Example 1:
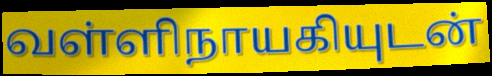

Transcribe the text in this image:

வள்ளிநாயகியுடன்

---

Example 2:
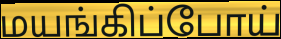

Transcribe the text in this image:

மயங்கிப்போய்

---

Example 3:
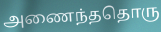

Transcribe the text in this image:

அணைந்ததொரு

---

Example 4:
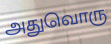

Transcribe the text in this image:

அதுவொரு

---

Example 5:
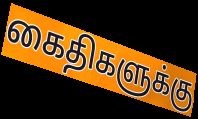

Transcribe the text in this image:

கைதிகளுக்கு